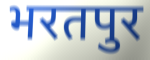
भरतपुर